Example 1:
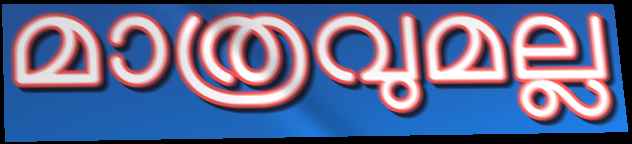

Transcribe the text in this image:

മാത്രവുമല്ല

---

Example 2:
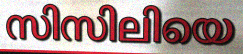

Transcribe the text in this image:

സിസിലിയെ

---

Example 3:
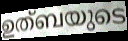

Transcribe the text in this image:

ഉത്ബയുടെ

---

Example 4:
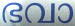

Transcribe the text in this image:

ഭവാ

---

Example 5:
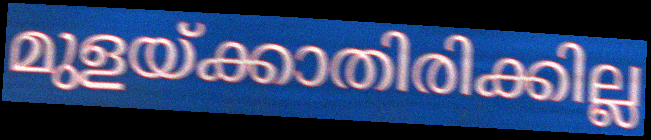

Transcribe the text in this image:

മുളയ്ക്കാതിരിക്കില്ല